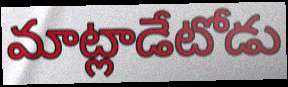
మాట్లాడేటోడు